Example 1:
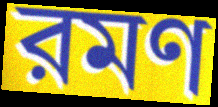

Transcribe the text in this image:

রমণ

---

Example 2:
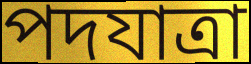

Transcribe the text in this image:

পদযাত্রা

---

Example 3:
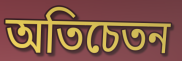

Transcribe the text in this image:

অতিচেতন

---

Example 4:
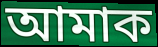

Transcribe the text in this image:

আমাক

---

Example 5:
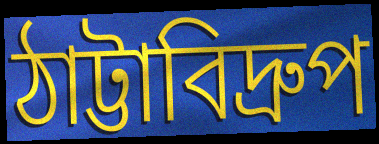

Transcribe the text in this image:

ঠাট্টাবিদ্রুপ